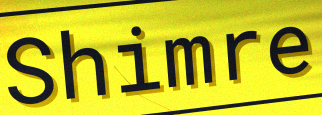
Shimre